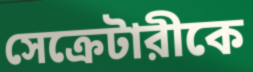
সেক্রেটারীকে